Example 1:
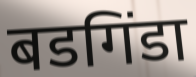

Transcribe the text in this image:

बडगिंडा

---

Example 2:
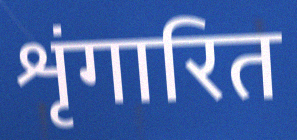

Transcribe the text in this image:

शृंगारित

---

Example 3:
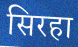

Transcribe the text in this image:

सिरहा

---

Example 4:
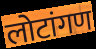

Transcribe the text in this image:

लोटांगण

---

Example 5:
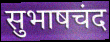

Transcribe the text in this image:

सुभाषचंद